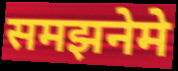
समझनेमे